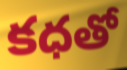
కధతో